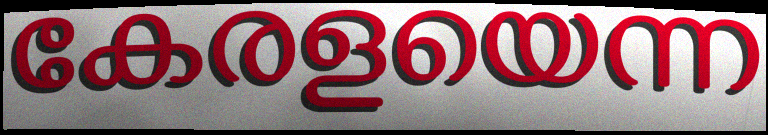
കേരളയെന്ന